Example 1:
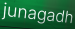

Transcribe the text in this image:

junagadh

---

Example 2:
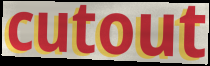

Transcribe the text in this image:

cutout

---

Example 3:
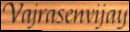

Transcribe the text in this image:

Vajrasenvijay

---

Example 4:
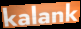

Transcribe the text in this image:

kalank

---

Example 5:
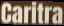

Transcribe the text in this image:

Caritra